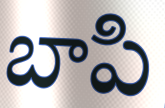
బాపి